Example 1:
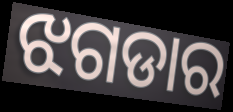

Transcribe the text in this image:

ଝଗଡାର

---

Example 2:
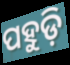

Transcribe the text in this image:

ପହୁଡ଼ି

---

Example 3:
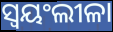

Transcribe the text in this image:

ସ୍ବୟଂଲୀଳା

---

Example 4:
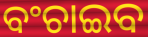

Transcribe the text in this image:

ବଂଚାଇବ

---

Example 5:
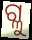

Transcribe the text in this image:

ଗ୍ଳୁ